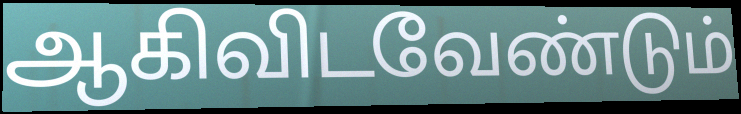
ஆகிவிடவேண்டும்